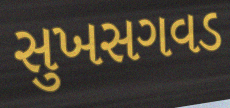
સુખસગવડ